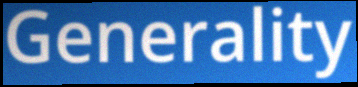
Generality